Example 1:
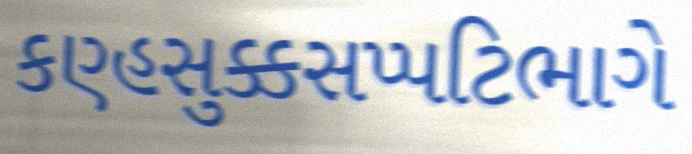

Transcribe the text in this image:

કણ્હસુક્કસપ્પટિભાગે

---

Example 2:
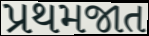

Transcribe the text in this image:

પ્રથમજાત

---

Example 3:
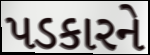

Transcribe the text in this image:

પડકારને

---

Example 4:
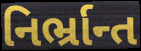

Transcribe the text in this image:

નિર્ભ્રાન્ત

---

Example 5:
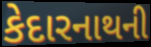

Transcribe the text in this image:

કેદારનાથની